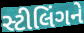
સ્ટીલિંગને